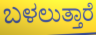
ಬಳಲುತ್ತಾರೆ